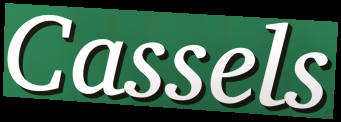
Cassels